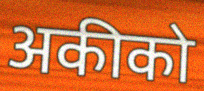
अकीको